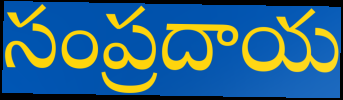
సంప్రదాయ